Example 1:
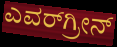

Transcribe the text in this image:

ಎವರ್‌ಗ್ರೀನ್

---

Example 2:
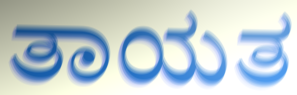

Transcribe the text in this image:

ತಾಯತ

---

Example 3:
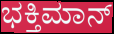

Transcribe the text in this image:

ಭಕ್ತಿಮಾನ್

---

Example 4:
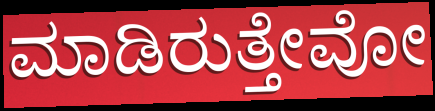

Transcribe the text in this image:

ಮಾಡಿರುತ್ತೇವೋ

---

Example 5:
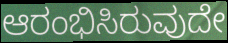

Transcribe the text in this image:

ಆರಂಭಿಸಿರುವುದೇ